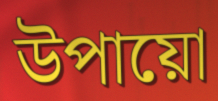
উপায়ো